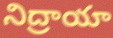
నిద్రాయా